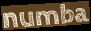
numba